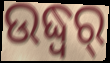
ଉଦ୍ଧ୍ୱର୍